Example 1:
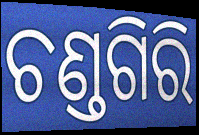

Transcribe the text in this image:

ଚଣ୍ଡଗିରି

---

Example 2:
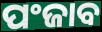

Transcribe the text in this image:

ପଂଜାବ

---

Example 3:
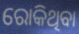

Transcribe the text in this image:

ରୋକିଥିବା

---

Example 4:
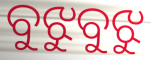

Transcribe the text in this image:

ବୁଝୁବୁଝୁ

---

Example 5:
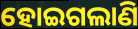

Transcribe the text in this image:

ହୋଇଗଲାଣି